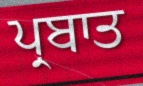
ਪ੍ਰਬਾਤ